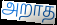
அறாத